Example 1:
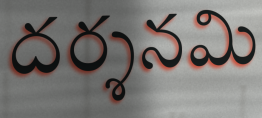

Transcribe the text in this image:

దర్శనమి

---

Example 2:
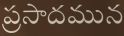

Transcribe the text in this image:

ప్రసాదమున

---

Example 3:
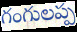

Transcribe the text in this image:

గంగులప్ప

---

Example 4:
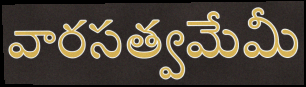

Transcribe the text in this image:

వారసత్వమేమీ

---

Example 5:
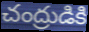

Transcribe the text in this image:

చంద్రుడికి